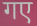
गए